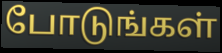
போடுங்கள்